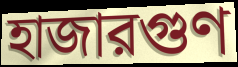
হাজারগুণ